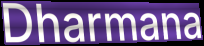
Dharmana